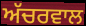
ਅੱਚਰਵਾਲ